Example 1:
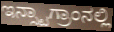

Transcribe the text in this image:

ಇನ್ಸ್ಟಾಗ್ರಾಂನಲ್ಲಿ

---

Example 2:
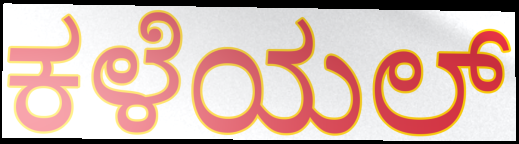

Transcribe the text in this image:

ಕಳೆಯಲ್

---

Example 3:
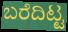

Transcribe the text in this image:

ಬರೆದಿಟ್ಟ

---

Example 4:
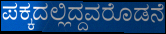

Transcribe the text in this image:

ಪಕ್ಕದಲ್ಲಿದ್ದವರೊಡನೆ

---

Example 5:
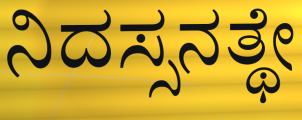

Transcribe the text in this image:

ನಿದಸ್ಸನತ್ಥೇ